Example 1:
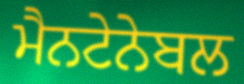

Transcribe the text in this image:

ਮੈਨਟੇਨੇਬਲ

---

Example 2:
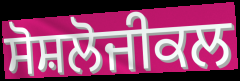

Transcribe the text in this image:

ਸੋਸ਼ਲੋਜੀਕਲ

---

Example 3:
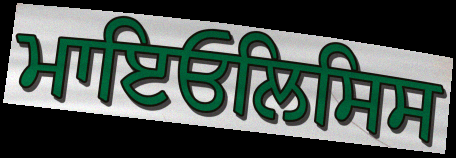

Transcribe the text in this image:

ਮਾਇਓਲਿਸਿਸ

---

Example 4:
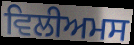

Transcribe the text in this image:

ਵਿਲੀਅਮਸ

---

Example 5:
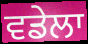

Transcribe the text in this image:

ਵਡੇਲਾ